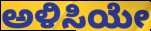
ಅಳಿಸಿಯೇ